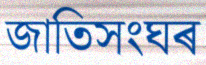
জাতিসংঘৰ